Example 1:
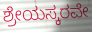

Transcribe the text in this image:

ಶ್ರೇಯಸ್ಕರವೇ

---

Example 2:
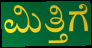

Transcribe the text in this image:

ಮಿತ್ತಿಗೆ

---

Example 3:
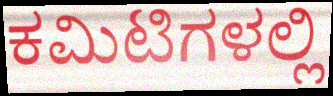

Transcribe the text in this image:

ಕಮಿಟಿಗಳಲ್ಲಿ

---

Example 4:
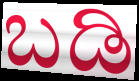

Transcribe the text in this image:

ಬಡಿ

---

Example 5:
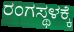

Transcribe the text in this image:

ರಂಗಸ್ಥಳಕ್ಕೆ